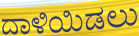
ದಾಳಿಯಿಡಲು